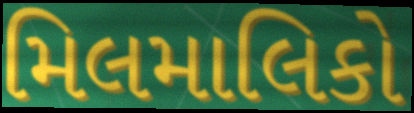
મિલમાલિકો